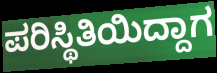
ಪರಿಸ್ಥಿತಿಯಿದ್ದಾಗ